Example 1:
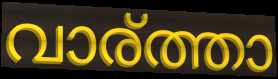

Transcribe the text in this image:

വാര്ത്താ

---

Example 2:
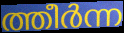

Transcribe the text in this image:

ത്തീർന്ന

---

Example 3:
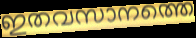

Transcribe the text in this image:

ഇതവസാനത്തെ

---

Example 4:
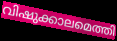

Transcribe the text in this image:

വിഷുക്കാലമെത്തി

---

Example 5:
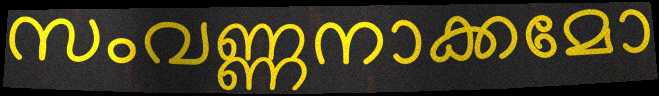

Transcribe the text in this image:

സംവണ്ണനാക്കമോ